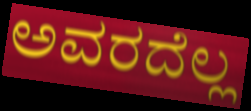
ಅವರದೆಲ್ಲ